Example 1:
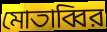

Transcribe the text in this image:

মোতাব্বির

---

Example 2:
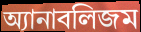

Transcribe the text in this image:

অ্যানাবলিজম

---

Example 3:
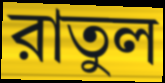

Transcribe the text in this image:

রাতুল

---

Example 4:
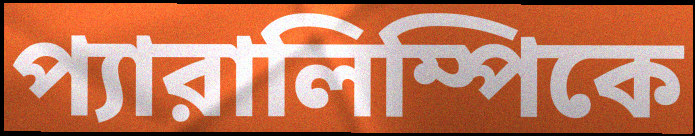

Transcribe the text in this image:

প্যারালিম্পিকে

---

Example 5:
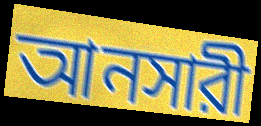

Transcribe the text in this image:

আনসারী